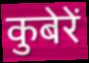
कुबेरें